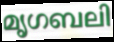
മൃഗബലി